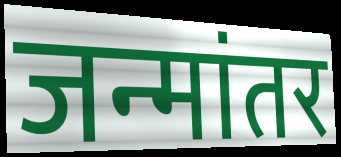
जन्मांतर